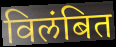
विलंबित